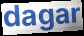
dagar